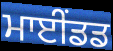
ਮਾਈਂਡਡ